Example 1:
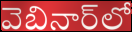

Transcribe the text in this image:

వెబినార్‌లో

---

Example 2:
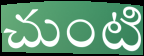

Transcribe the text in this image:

చుంటి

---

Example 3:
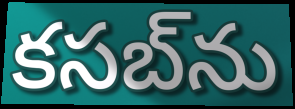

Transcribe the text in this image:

కసబ్‌ను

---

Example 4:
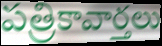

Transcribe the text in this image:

పత్రికావార్తలు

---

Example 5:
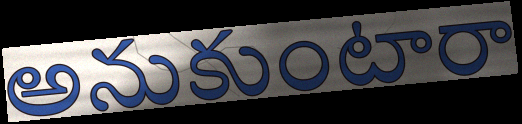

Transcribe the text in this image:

అనుకుంటారా